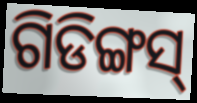
ଗିଡିଙ୍ଗସ୍